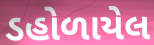
ડહોળાયેલ